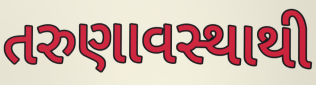
તરુણાવસ્થાથી